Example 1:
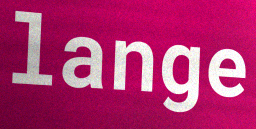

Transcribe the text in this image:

lange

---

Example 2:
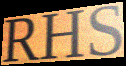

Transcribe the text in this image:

RHS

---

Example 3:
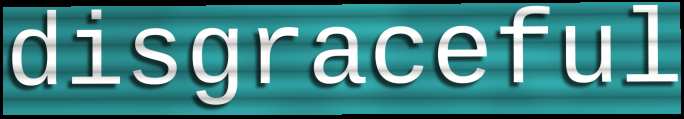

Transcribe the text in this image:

disgraceful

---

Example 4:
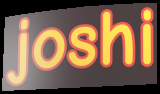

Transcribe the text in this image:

joshi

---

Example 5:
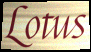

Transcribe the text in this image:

Lotus